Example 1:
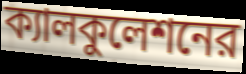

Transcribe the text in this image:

ক্যালকুলেশনের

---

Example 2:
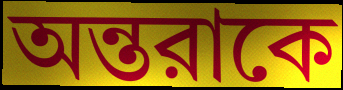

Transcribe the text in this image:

অন্তরাকে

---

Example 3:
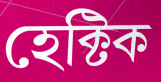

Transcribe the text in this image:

হেক্টিক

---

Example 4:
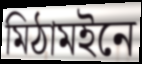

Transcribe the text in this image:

মিঠামইনে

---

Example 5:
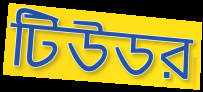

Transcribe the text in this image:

টিউডর